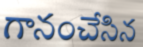
గానంచేసిన